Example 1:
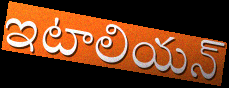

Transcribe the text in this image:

ఇటాలియన్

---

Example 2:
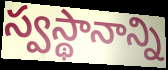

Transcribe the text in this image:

స్వస్థానాన్ని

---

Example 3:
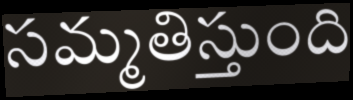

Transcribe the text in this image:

సమ్మతిస్తుంది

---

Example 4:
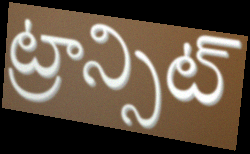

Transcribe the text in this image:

ట్రాన్సిట్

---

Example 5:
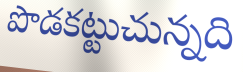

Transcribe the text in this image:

పొడకట్టుచున్నది